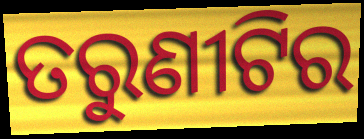
ତରୁଣୀଟିର